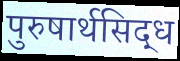
पुरुषार्थसिद्ध